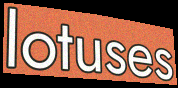
lotuses